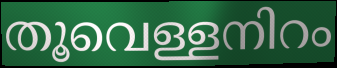
തൂവെള്ളനിറം